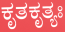
ಕೃತಕೃತ್ಯಃ